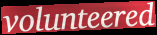
volunteered